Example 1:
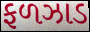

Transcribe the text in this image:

ફળઝાડ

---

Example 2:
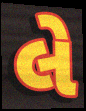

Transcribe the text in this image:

લે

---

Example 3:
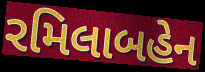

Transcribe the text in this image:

રમિલાબહેન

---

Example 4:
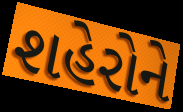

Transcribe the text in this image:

શહેરોને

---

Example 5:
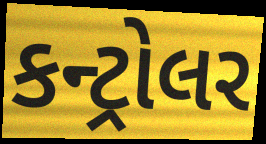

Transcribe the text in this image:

કન્ટ્રોલર